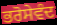
ਭਰੋਸੇਵੰਦ